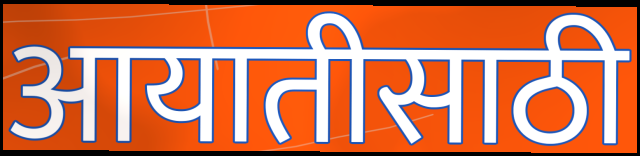
आयातीसाठी